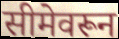
सीमेवरून